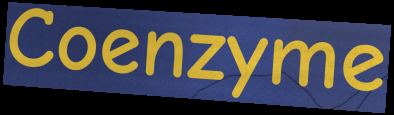
Coenzyme